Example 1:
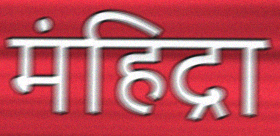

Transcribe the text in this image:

मंहिद्रा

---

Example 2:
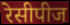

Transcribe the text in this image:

रेसीपीज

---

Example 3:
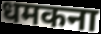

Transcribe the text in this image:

धमकना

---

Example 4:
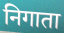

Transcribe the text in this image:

निगाता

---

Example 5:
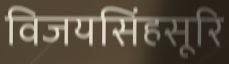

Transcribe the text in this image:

विजयसिंहसूरि